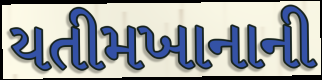
યતીમખાનાની